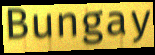
Bungay